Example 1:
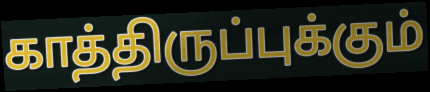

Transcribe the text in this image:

காத்திருப்புக்கும்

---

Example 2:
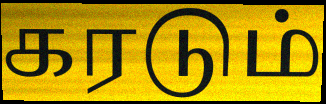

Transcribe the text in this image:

கரடும்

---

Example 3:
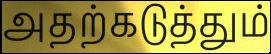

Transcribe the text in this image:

அதற்கடுத்தும்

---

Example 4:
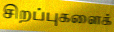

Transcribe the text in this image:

சிறப்புகளைக்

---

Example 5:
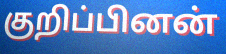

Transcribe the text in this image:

குறிப்பினன்